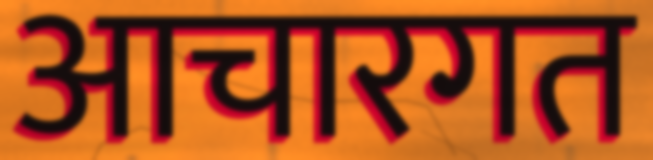
आचारगत